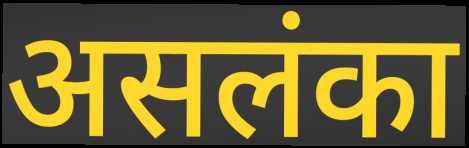
असलंका